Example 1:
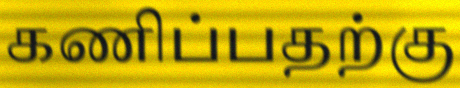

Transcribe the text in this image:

கணிப்பதற்கு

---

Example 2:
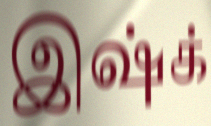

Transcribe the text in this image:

இஷ்க்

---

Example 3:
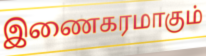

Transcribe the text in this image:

இணைகரமாகும்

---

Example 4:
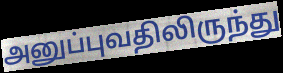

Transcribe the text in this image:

அனுப்புவதிலிருந்து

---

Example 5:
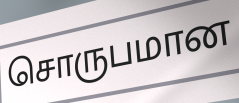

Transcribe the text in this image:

சொருபமான